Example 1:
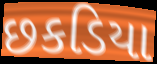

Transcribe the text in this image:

છકડિયા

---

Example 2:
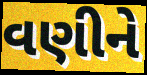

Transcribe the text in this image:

વણીને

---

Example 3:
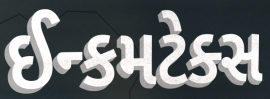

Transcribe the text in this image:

ઈન્કમટેક્સ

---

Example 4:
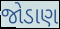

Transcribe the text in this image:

જોડાણ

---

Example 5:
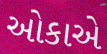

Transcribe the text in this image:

ઓકાએ